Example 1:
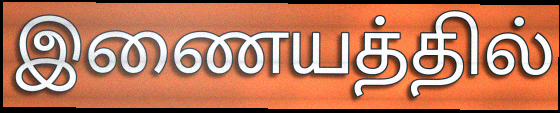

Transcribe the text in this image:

இணையத்தில்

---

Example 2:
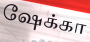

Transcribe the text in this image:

ஷேக்கா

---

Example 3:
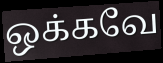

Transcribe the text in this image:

ஒக்கவே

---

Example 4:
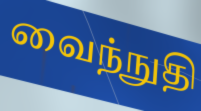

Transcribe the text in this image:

வைந்நுதி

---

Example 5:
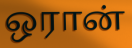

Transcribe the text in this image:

ஒரான்